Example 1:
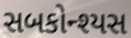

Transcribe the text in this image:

સબકોન્શ્યસ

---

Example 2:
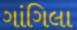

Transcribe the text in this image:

ગાંગિલા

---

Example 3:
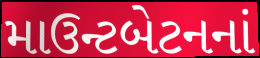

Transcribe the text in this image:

માઉન્ટબેટનનાં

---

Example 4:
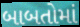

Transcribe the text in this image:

બાબતોમાં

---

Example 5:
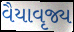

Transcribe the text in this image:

વૈયાવૃજ્ય